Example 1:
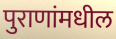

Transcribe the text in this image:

पुराणांमधील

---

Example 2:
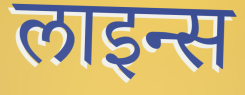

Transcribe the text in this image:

लाइन्स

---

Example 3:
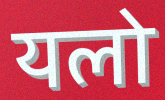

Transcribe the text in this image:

यलो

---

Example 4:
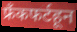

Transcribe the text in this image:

फ्रँकफर्टहून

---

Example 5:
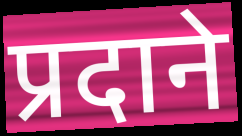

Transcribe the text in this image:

प्रदाने